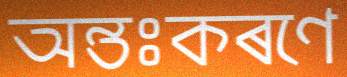
অন্তঃকৰণে